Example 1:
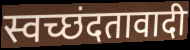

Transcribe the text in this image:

स्वच्छंदतावादी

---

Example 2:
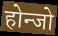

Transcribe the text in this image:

होन्जो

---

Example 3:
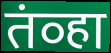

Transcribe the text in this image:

तंव्हा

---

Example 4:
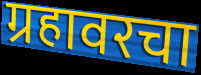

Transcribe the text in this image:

ग्रहावरचा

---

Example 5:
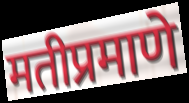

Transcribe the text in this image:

मतीप्रमाणे